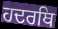
ਹਦਰਥਿ